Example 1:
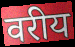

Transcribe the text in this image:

वरीय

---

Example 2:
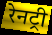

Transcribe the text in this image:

रेनट्री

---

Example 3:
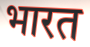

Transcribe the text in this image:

भारत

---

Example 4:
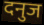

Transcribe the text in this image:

दनुज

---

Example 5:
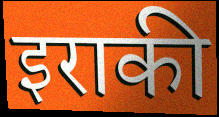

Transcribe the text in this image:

इराकी